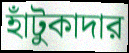
হাঁটুকাদার